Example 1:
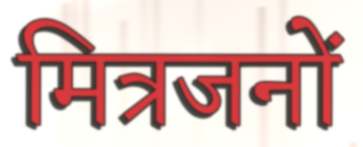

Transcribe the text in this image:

मित्रजनों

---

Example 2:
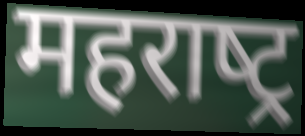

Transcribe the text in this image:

महराष्‍ट्र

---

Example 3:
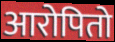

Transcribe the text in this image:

आरोपितो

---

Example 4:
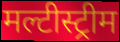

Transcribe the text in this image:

मल्टीस्ट्रीम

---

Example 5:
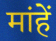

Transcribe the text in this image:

मांहें